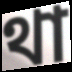
থা